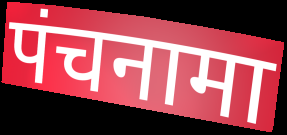
पंचनामा